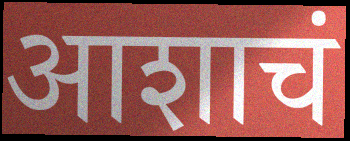
आशाचं